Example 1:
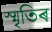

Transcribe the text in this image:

স্মৃতিৰ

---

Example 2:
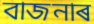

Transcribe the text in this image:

বাজনাৰ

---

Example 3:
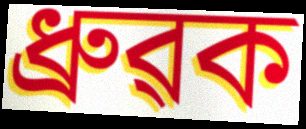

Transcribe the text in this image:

ধ্ৰুৱক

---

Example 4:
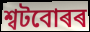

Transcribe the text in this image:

শ্বটবোৰৰ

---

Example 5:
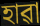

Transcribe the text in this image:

হাৱা